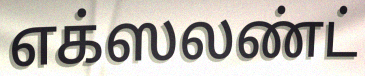
எக்ஸலண்ட்